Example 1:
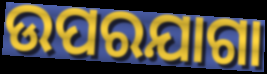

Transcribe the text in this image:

ଉପରଯାଗା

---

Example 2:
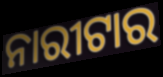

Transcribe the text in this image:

ନାରୀଟାର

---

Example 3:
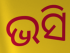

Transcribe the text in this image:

ଭସି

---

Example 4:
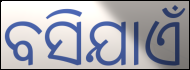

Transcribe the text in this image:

ବସିଯାଏଁ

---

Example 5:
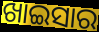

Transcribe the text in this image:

ଖାଇସାର